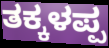
ತಕ್ಕಳಪ್ಪ